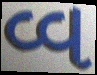
વ્વ